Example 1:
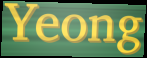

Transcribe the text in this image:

Yeong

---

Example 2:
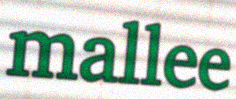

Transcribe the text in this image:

mallee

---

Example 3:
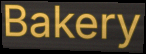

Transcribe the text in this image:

Bakery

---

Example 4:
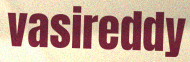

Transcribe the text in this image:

vasireddy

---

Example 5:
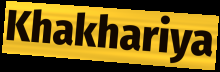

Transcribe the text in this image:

Khakhariya